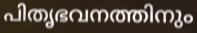
പിതൃഭവനത്തിനും